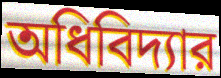
অধিবিদ্যার